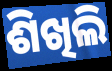
ଶିଖିଲି